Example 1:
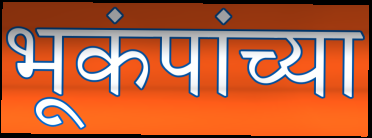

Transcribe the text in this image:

भूकंपांच्या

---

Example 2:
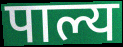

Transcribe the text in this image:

पाल्य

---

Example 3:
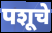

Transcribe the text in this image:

पशूचे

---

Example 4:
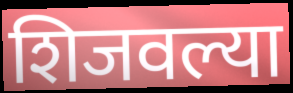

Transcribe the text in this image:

शिजवल्या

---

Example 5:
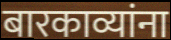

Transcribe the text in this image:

बारकाव्यांना